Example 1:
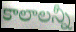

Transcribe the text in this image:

కాలాలన్నీ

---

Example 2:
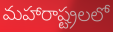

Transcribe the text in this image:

మహారాష్ట్రలలో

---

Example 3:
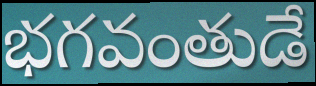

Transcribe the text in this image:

భగవంతుడే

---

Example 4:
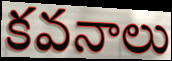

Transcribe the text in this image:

కవనాలు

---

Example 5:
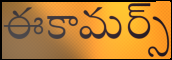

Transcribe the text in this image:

ఈకామర్స్